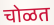
चोळत